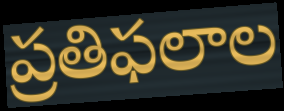
ప్రతిఫలాల